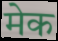
मेक